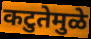
कटुतेमुळे